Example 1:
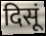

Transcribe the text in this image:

दिसूं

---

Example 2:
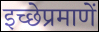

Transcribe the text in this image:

इच्छेप्रमाणें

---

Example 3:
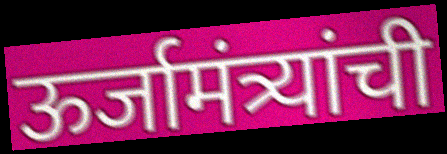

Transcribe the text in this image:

ऊर्जामंत्र्यांची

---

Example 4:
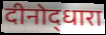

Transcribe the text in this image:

दीनोद्धारा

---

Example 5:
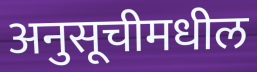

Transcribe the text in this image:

अनुसूचीमधील